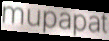
mupapat